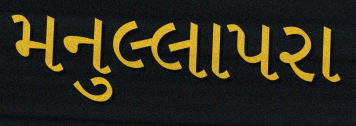
મનુલ્લાપરા